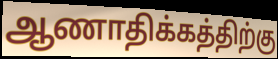
ஆணாதிக்கத்திற்கு